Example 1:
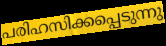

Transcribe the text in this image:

പരിഹസിക്കപ്പെടുന്നു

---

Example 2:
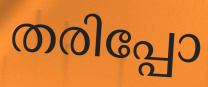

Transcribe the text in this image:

തരിപ്പോ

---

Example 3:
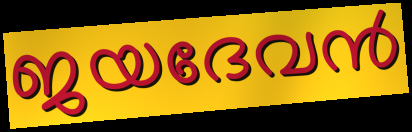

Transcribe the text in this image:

ജയദേവൻ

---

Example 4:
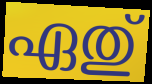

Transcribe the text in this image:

ഏതു്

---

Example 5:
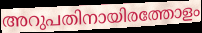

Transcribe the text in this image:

അറുപതിനായിരത്തോളം